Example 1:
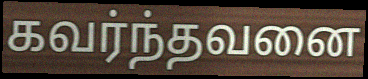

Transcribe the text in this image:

கவர்ந்தவனை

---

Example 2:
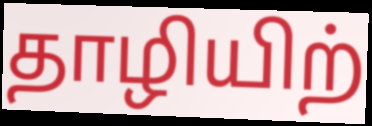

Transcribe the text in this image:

தாழியிற்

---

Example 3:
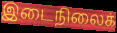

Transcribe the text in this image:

இடைநிலைக்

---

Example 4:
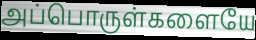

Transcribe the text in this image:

அப்பொருள்களையே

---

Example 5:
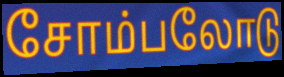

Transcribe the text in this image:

சோம்பலோடு